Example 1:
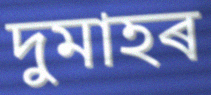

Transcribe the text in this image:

দুমাহৰ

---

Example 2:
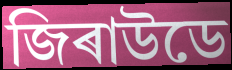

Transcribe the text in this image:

জিৰাউডে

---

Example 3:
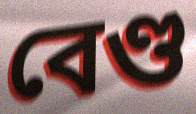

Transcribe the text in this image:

বেণ্ড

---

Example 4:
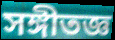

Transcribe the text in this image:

সঙ্গীতজ্ঞ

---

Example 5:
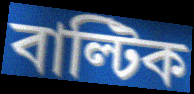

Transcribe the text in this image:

বাল্টিক